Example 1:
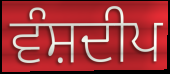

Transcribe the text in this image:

ਵੰਸ਼ਦੀਪ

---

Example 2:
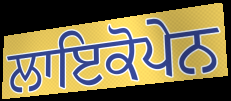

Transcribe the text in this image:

ਲਾਇਕੋਪੇਨ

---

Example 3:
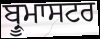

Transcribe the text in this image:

ਬ੍ਰੂਮਾਸਟਰ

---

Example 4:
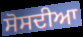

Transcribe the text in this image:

ਸੋਸਦੀਆ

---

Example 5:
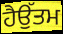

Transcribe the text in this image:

ਹੈਉੱਤਮ